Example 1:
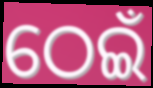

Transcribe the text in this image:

ଠେଇଁ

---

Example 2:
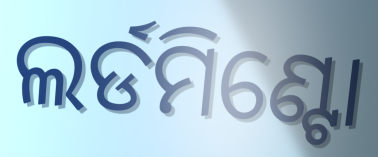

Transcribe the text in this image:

ଲର୍ଡମିଣ୍ଟୋ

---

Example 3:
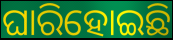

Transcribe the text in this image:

ଘାରିହୋଇଛି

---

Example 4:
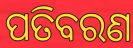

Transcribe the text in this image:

ପତିବରଣ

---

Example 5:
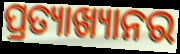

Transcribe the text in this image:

ପ୍ରତ୍ୟାଖ୍ୟାନର